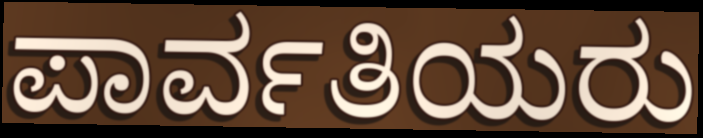
ಪಾರ್ವತಿಯರು